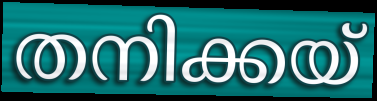
തനിക്കയ്